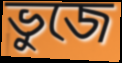
ভুজে